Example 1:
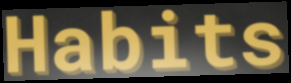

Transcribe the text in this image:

Habits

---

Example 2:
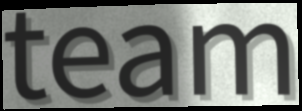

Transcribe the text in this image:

team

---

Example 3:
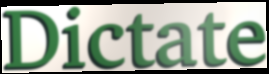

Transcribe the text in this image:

Dictate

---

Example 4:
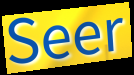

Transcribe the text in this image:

Seer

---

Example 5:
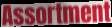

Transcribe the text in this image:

Assortment